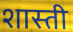
शास्ती